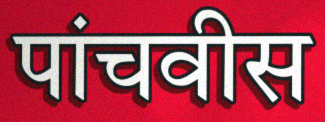
पांचवीस